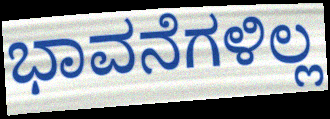
ಭಾವನೆಗಳಿಲ್ಲ